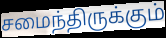
சமைந்திருக்கும்